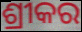
ଶ୍ରୀକର